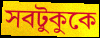
সবটুকুকে